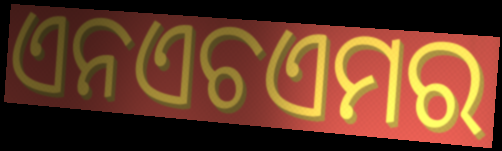
ଏନଏଚଏମର